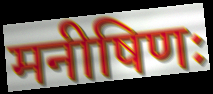
मनीषिणः